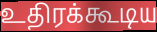
உதிரக்கூடிய